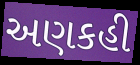
અણકહી